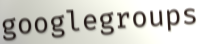
googlegroups